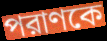
পরাণকে